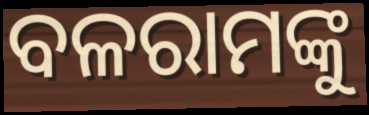
ବଳରାମଙ୍କୁ